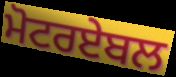
ਮੋਟਰਏਬਲ